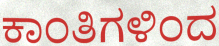
ಕಾಂತಿಗಳಿಂದ